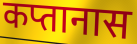
कप्तानास